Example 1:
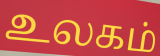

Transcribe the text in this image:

உலகம்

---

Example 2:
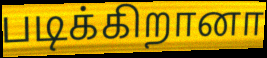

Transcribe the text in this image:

படிக்கிறானா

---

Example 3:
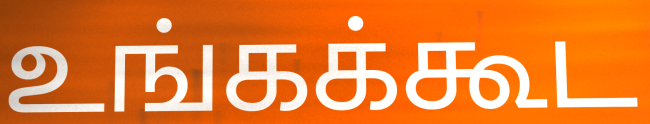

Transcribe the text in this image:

உங்கக்கூட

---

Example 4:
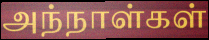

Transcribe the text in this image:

அந்நாள்கள்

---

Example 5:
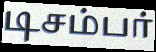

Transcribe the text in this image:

டிசம்பர்